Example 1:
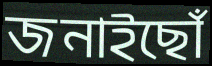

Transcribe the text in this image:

জনাইছোঁ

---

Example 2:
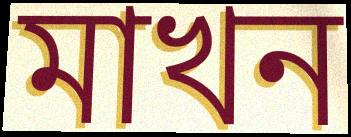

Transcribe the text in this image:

মাখন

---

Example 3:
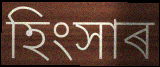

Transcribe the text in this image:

হিংসাৰ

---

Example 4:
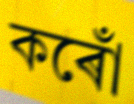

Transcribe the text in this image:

কৰোঁ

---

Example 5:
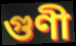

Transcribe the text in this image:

গুণী